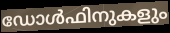
ഡോൾഫിനുകളും